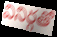
వినిర్గతో